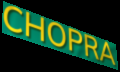
CHOPRA